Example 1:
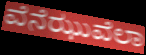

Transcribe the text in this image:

ವೆನೆಝುವೆಲಾ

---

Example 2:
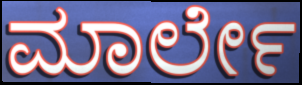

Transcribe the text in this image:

ಮಾರ್ಲೇ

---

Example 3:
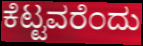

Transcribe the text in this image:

ಕೆಟ್ಟವರೆಂದು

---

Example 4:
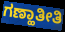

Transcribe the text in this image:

ಗಣ್ಹಾತೀತಿ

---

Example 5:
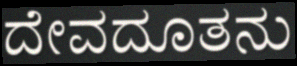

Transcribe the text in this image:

ದೇವದೂತನು